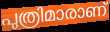
പുത്രിമാരാണ്